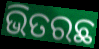
ଭିତରଛ